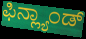
ಫಿನ್ಲ್ಯಾಂಡ್